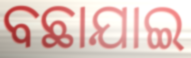
ବଛାଯାଇ